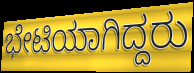
ಭೇಟಿಯಾಗಿದ್ದರು